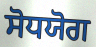
ਸੋਧਯੋਗ